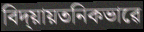
বিদ্য়ায়তনিকভাৱে